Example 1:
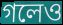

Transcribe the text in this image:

গলেও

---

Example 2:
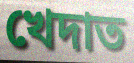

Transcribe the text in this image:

খেদাত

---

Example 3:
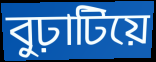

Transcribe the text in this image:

বুঢ়াটিয়ে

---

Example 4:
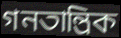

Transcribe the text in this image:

গনতান্ত্ৰিক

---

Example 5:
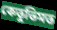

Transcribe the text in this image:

কেতুভিমত